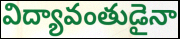
విద్యావంతుడైనా